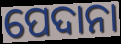
ପେଦାନା